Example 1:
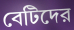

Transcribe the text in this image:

বেটিদের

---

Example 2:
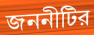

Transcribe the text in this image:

জননীটির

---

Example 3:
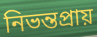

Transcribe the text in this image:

নিভন্তপ্রায়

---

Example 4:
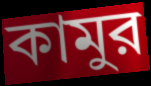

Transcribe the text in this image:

কামুর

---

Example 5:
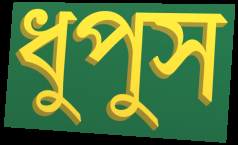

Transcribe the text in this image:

ধুপুস